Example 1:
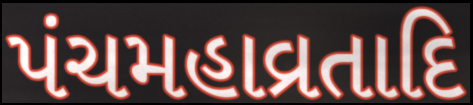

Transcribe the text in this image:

પંચમહાવ્રતાદિ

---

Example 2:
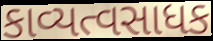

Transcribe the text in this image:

કાવ્યત્વસાધક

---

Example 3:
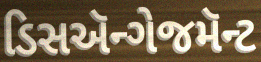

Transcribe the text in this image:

ડિસઍન્ગેજમૅન્ટ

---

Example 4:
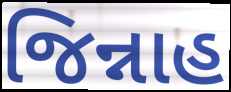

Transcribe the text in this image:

જિન્નાહ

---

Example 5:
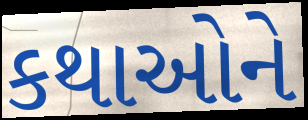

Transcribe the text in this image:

કથાઓને